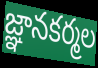
జ్ఞానకర్మల